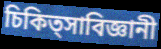
চিকিত্সাবিজ্ঞানী